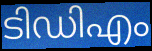
ടിഡിഎം